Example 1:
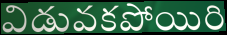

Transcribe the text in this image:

విడువకపోయిరి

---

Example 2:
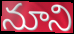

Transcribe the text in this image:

నూని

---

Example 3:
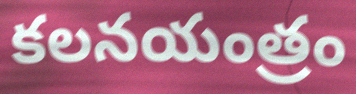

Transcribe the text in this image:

కలనయంత్రం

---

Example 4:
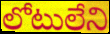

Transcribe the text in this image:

లోటులేని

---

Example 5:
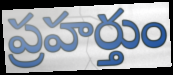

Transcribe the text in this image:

ప్రహర్తుం